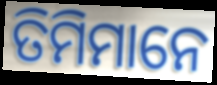
ତିମିମାନେ